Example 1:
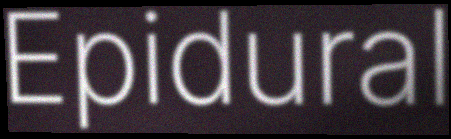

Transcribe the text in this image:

Epidural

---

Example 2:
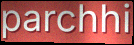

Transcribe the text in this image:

parchhi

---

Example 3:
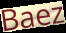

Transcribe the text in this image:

Baez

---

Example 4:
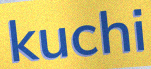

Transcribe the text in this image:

kuchi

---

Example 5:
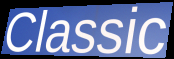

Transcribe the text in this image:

Classic